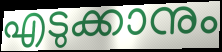
എടുക്കാനും